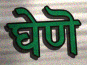
घेणॆ